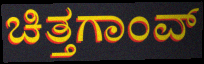
ಚಿತ್ತಗಾಂವ್